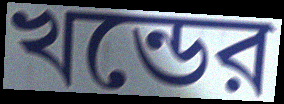
খন্ডের